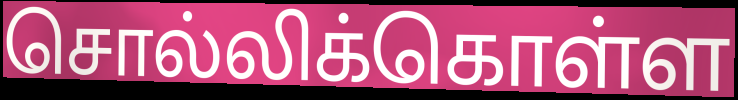
சொல்லிக்கொள்ள